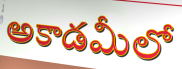
అకాడమీలో